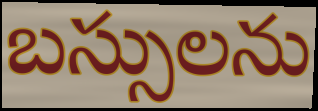
బస్సులను